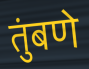
तुंबणे